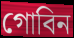
গোবিন